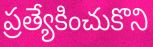
ప్రత్యేకించుకొని